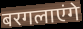
बरगलाएंगे